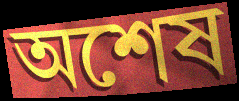
অশেষ